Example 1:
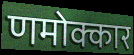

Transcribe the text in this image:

णमोक्कार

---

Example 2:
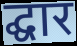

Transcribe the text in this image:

द्घार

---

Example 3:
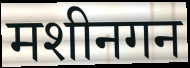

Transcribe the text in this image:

मशीनगन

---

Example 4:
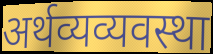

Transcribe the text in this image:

अर्थव्यव्यवस्था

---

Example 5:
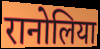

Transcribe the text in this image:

रानोलिया